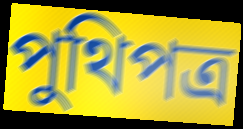
পুথিপত্র